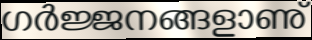
ഗർജ്ജനങ്ങളാണു്